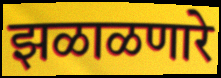
झळाळणारे